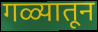
गळ्यातून